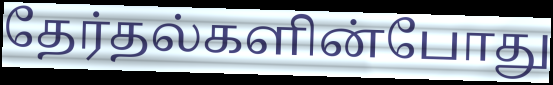
தேர்தல்களின்போது